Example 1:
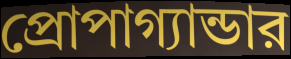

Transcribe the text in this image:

প্রোপাগ্যান্ডার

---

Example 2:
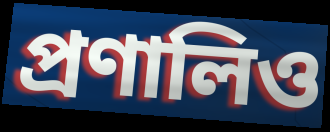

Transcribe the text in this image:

প্রণালিও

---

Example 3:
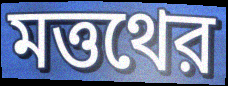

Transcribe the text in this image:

মত্তথের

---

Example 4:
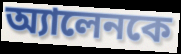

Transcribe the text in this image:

অ্যালেনকে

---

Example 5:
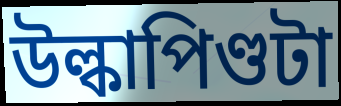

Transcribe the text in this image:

উল্কাপিণ্ডটা